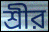
শ্রীর